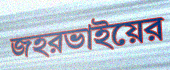
জহরভাইয়ের